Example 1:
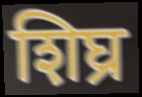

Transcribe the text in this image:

शिघ्र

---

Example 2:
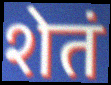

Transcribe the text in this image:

शेतं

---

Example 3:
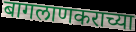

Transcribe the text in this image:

बागलाणकराच्या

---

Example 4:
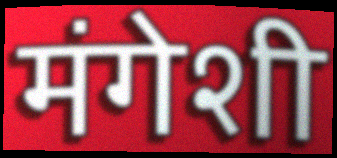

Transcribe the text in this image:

मंगेशी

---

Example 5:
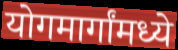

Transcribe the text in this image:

योगमार्गांमध्ये